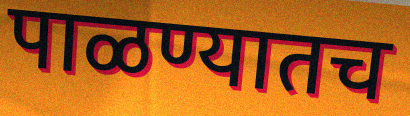
पाळण्यातच